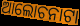
ଆଲୋଚନାଟା